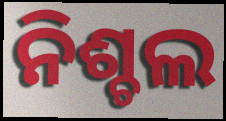
ନିଶ୍ଚଲ